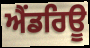
ਐਂਡਰਿਊ